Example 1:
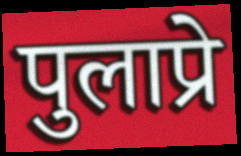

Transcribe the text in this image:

पुलाप्रे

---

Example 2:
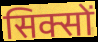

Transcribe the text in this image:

सिक्सों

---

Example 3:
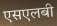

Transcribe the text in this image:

एसएलबी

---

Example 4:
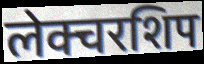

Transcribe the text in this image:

लेक्चरशिप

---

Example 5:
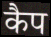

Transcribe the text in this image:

कैप